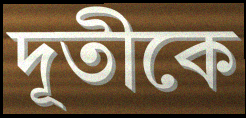
দূতীকে